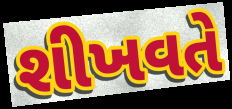
શીખવતે